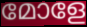
മോളേ